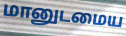
மானுடமைய